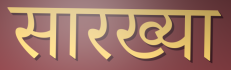
सारख्या